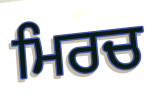
ਮਿਰਚ